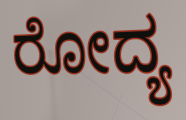
ರೋದ್ಯ